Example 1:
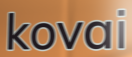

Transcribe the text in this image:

kovai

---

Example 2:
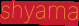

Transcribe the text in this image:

shyama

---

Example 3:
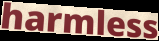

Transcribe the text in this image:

harmless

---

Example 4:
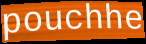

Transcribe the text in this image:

pouchhe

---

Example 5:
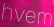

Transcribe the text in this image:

hvem